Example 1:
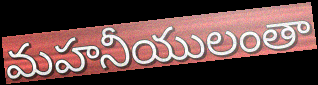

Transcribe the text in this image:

మహనీయులంతా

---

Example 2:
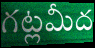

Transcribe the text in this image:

గట్లమీద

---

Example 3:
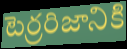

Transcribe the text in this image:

టెర్రరిజానికి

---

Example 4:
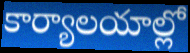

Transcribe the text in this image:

కార్యాలయాల్లో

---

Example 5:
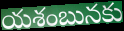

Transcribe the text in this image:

యశంబునకు